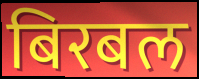
बिरबल